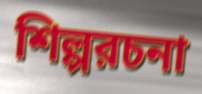
শিল্পরচনা